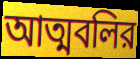
আত্মবলির